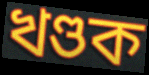
খণ্ডক